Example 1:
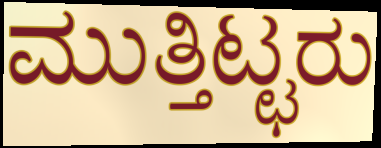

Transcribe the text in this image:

ಮುತ್ತಿಟ್ಟರು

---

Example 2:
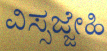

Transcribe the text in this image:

ವಿಸ್ಸಜ್ಜೇಹಿ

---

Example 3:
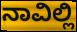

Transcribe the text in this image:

ನಾವಿಲ್ಲಿ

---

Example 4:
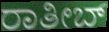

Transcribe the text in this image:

ರಾತೀಬ್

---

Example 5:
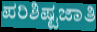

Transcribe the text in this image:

ಪರಿಶಿಷ್ಟಜಾತಿ